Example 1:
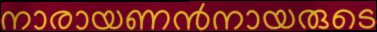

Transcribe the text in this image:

നാരായണൻനായരുടെ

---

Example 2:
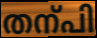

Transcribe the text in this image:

തന്പി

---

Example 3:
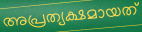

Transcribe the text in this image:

അപ്രത്യക്ഷമായത്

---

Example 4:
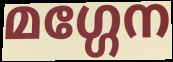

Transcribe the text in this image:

മഗ്ഗേന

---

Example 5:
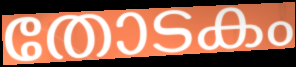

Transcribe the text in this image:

തോടകം